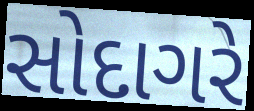
સોદાગરે